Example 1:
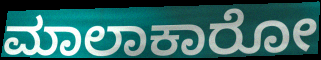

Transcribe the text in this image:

ಮಾಲಾಕಾರೋ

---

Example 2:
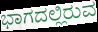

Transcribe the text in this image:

ಭಾಗದಲ್ಲಿರುವ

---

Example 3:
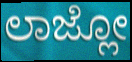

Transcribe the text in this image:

ಲಾಜ್ಲೋ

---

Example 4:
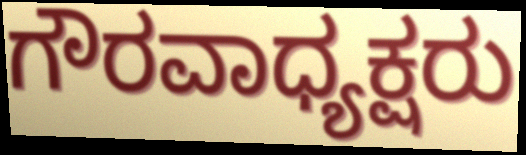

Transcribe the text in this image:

ಗೌರವಾಧ್ಯಕ್ಷರು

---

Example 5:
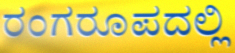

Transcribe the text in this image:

ರಂಗರೂಪದಲ್ಲಿ